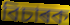
বিচাৰক